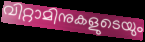
വിറ്റാമിനുകളുടെയും